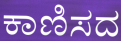
ಕಾಣಿಸದ